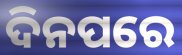
ଦିନପରେ